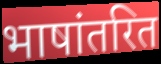
भाषांतरित